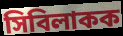
সিবিলাকক